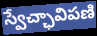
స్వేచ్ఛావిపణి